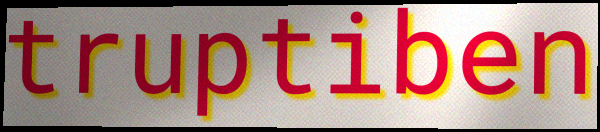
truptiben